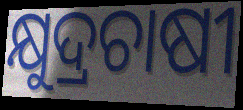
କ୍ଷୁଦ୍ରଚାଷୀ